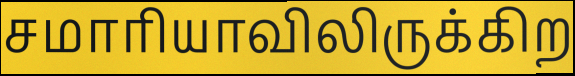
சமாரியாவிலிருக்கிற